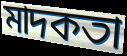
মাদকতা